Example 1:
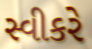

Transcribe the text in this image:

સ્વીકરે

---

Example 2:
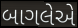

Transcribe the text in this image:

બાગલેએ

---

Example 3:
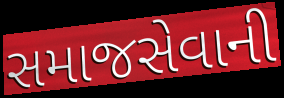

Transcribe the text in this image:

સમાજસેવાની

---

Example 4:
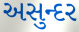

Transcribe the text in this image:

અસુન્દર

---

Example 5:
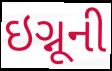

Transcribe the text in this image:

ઇગ્નૂની